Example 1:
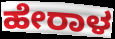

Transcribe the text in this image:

ಹೇರಾಳ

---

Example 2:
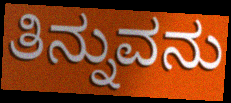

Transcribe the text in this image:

ತಿನ್ನುವನು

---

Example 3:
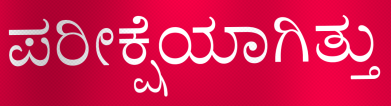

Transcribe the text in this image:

ಪರೀಕ್ಷೆಯಾಗಿತ್ತು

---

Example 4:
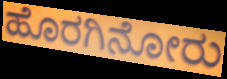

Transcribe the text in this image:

ಹೊರಗಿನೋರು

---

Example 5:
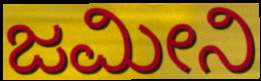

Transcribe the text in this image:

ಜಮೀನಿ